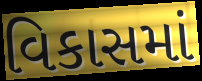
વિકાસમાં